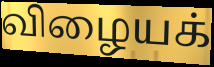
விழையக்